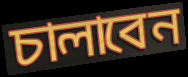
চালাবেন